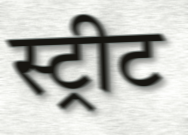
स्ट्रीट